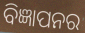
ବିଜ୍ଞାପନର